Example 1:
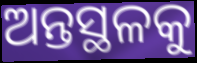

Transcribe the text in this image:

ଅନ୍ତସ୍ଥଳକୁ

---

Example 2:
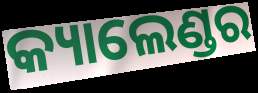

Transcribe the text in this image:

କ୍ୟାଲେଣ୍ଡର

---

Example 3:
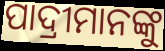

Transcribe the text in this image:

ପାଦ୍ରୀମାନଙ୍କୁ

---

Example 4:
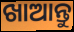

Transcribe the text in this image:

ଖାଆନ୍ତୁ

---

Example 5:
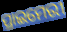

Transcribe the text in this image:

ପ୍ରାଇମେରୀ